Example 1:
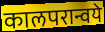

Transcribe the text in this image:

कालपरान्वये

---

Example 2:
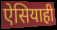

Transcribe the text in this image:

ऐसियाही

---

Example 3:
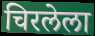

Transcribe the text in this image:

चिरलेला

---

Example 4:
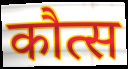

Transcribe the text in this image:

कौत्स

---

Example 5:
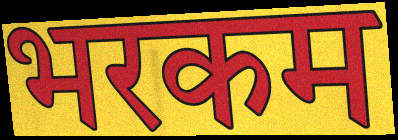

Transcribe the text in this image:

भरकम